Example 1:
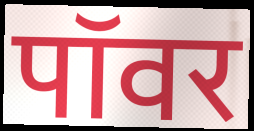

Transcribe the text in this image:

पॉवर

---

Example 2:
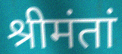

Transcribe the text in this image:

श्रीमंतां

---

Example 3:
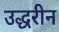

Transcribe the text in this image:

उद्धरीन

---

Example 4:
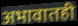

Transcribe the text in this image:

अभावातही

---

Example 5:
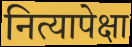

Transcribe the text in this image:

नित्यापेक्षा